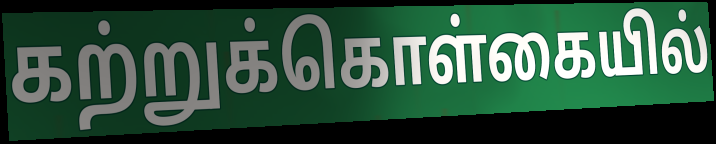
கற்றுக்கொள்கையில்